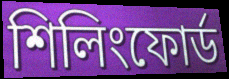
শিলিংফোর্ড